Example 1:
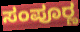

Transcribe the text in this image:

ಸಂಪೂರ್‍ಣ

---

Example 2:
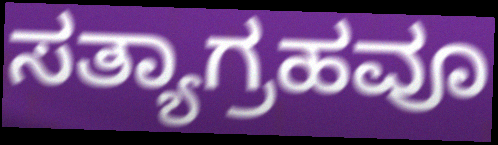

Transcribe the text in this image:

ಸತ್ಯಾಗ್ರಹವೂ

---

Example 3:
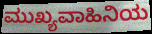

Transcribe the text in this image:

ಮುಖ್ಯವಾಹಿನಿಯ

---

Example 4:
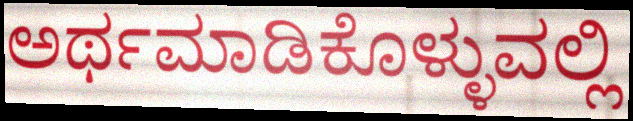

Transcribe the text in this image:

ಅರ್ಥಮಾಡಿಕೊಳ್ಳುವಲ್ಲಿ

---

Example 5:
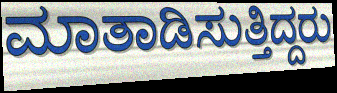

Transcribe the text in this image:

ಮಾತಾಡಿಸುತ್ತಿದ್ದರು